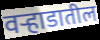
वर्‍हाडातील